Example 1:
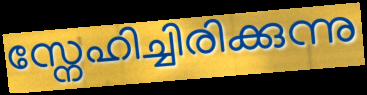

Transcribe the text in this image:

സ്നേഹിച്ചിരിക്കുന്നു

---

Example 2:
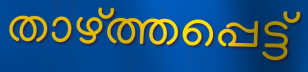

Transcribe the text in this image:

താഴ്ത്തപ്പെട്ട്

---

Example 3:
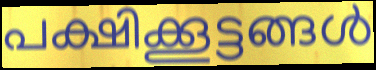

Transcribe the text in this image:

പക്ഷിക്കൂട്ടങ്ങൾ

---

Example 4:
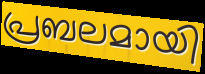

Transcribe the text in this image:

പ്രബലമായി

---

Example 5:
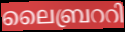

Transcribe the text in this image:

ലൈബ്രററി